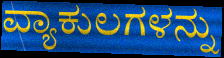
ವ್ಯಾಕುಲಗಳನ್ನು